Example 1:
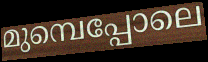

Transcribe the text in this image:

മുമ്പെപ്പോലെ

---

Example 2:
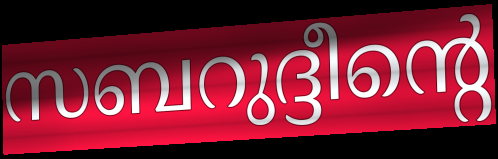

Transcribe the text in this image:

സബറുദ്ദീന്റെ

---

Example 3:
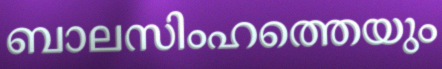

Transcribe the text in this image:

ബാലസിംഹത്തെയും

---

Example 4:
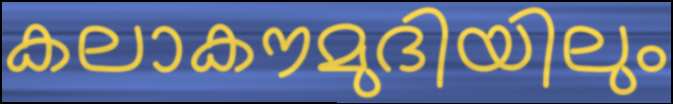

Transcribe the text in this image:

കലാകൗമുദിയിലും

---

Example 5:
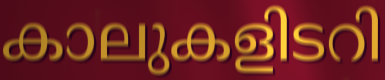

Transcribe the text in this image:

കാലുകളിടറി